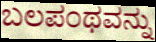
ಬಲಪಂಥವನ್ನು